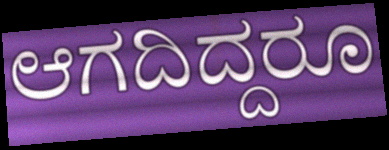
ಆಗದಿದ್ದರೂ